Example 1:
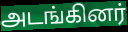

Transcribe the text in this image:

அடங்கினர்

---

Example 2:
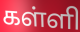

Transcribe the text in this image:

கள்ளி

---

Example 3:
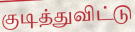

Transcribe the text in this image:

குடித்துவிட்டு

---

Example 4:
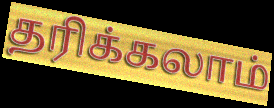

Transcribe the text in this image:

தரிக்கலாம்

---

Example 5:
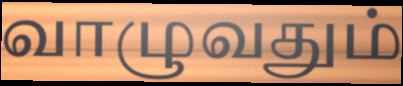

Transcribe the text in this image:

வாழுவதும்